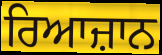
ਰਿਆਜ਼ਾਨ